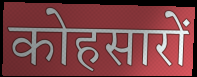
कोहसारों